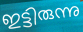
ഇട്ടിരുന്നു